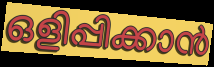
ഒളിപ്പിക്കാൻ